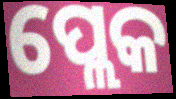
ପ୍ଲେକ